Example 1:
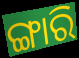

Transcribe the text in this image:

ଙ୍ଗାରି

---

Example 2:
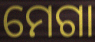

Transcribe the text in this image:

ମେଗା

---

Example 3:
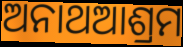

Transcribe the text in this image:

ଅନାଥଆଶ୍ରମ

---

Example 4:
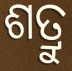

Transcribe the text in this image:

ଶତ୍ରୁ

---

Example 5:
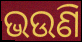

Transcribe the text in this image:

ଭଉଣି